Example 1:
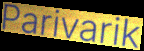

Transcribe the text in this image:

Parivarik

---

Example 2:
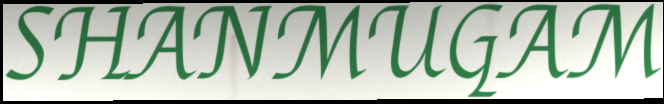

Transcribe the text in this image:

SHANMUGAM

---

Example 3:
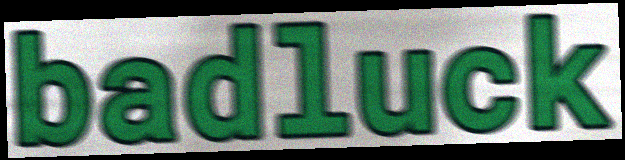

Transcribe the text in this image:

badluck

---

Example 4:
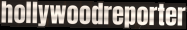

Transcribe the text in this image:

hollywoodreporter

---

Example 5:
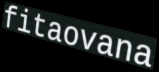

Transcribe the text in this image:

fitaovana